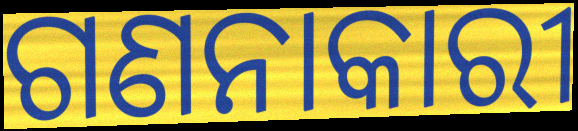
ଗଣନାକାରୀ